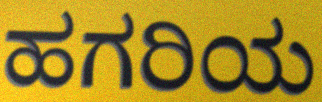
ಹಗರಿಯ